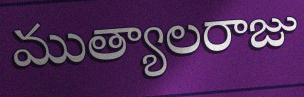
ముత్యాలరాజు